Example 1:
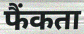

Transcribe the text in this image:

फैंकता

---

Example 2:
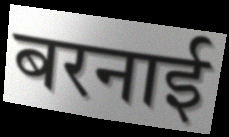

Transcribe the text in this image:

बरनाई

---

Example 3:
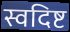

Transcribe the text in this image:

स्वदिष्ट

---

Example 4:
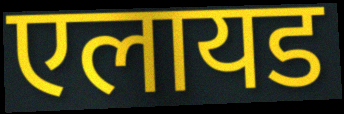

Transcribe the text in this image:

एलायड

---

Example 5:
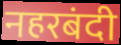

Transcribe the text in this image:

नहरबंदी